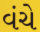
વંચે